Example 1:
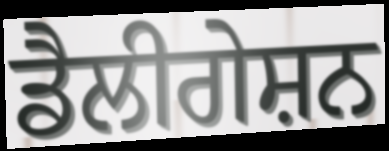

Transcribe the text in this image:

ਡੈਲੀਗੇਸ਼ਨ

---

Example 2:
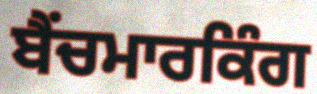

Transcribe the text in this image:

ਬੈਂਚਮਾਰਕਿੰਗ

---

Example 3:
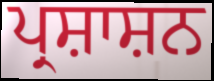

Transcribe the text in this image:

ਪ੍ਰਸ਼ਾਸ਼ਨ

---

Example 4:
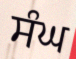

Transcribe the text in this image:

ਸੰਘ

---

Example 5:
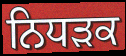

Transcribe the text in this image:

ਨਿਧਡ਼ਕ